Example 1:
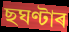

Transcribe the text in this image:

ছঘণ্টাৰ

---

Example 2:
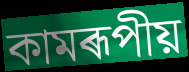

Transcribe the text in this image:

কামৰূপীয়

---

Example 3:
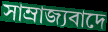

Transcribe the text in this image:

সাম্ৰাজ্যবাদে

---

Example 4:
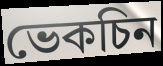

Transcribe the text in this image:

ভেকচিন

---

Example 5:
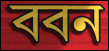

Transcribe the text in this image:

ববন